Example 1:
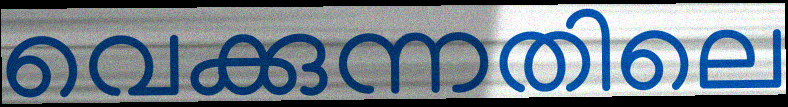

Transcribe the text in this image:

വെക്കുന്നതിലെ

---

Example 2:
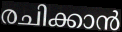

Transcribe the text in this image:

രചിക്കാൻ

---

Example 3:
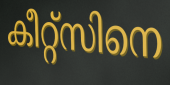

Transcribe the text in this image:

കീറ്റ്സിനെ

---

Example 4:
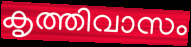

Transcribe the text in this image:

കൃത്തിവാസം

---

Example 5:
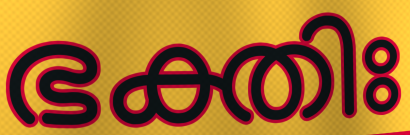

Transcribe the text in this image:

ഭക്തിഃ